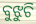
ବୁଝୁଚି